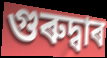
গুৰুদ্বাৰ